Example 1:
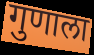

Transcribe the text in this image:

गुणाला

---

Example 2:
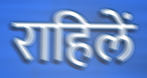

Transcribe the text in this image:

राहिलें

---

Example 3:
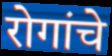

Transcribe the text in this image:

रोगांचे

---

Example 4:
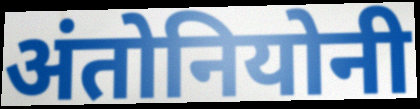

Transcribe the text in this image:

अंतोनियोनी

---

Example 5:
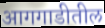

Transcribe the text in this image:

आगगाडीतील